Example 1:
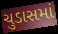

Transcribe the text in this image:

ચુડાસમાં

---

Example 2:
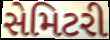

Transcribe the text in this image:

સેમિટરી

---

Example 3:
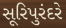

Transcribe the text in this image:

સૂરિપુરંદરે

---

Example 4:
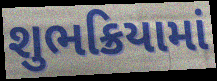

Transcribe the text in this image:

શુભક્રિયામાં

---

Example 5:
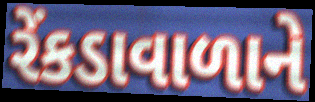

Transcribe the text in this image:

રેંકડાવાળાને